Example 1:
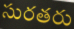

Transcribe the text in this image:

సురతరు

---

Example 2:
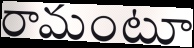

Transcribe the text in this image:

రామంటూ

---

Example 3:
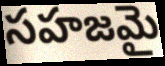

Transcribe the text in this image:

సహజమై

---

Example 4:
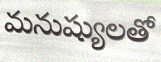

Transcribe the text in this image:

మనుష్యులతో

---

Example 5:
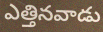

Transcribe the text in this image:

ఎత్తినవాడు